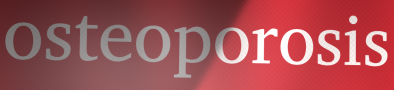
osteoporosis